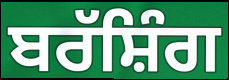
ਬਰੱਸ਼ਿੰਗ